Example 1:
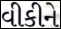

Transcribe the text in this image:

વીકીને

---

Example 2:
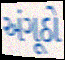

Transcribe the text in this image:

અંગૂઠો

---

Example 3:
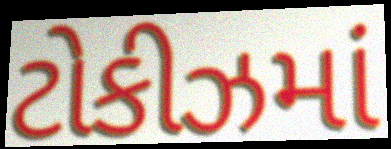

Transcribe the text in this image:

ટોકીઝમાં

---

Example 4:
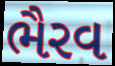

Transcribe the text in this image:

ભૈરવ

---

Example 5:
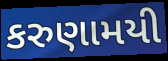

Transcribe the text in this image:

કરુણામયી